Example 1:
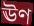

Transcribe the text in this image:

ঊণ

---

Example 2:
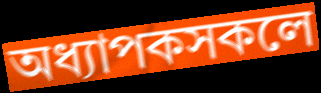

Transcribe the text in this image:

অধ্যাপকসকলে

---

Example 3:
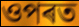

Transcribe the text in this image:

ওপৰত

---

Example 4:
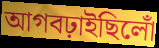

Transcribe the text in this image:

আগবঢ়াইছিলোঁ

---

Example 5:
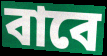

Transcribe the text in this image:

বাবে